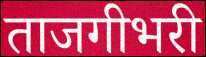
ताजगीभरी